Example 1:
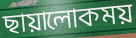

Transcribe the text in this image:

ছায়ালোকময়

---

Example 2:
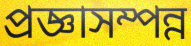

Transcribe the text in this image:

প্রজ্ঞাসম্পন্ন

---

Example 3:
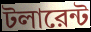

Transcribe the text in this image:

টলারেন্ট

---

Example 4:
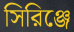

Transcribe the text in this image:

সিরিঞ্জে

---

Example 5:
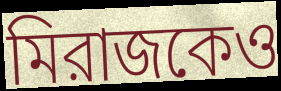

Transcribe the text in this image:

মিরাজকেও